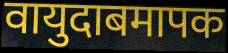
वायुदाबमापक